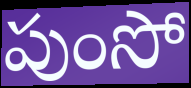
పుంసో